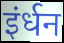
इंर्धन